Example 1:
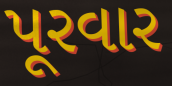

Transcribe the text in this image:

પૂરવાર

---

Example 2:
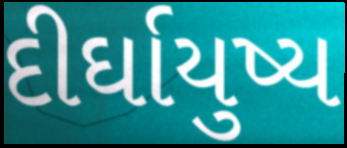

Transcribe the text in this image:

દીર્ઘાયુષ્ય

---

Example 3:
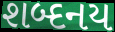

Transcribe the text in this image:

શબ્દનય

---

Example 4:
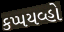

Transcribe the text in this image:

કપ્પયવ્હો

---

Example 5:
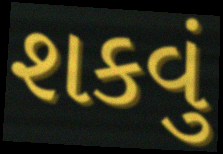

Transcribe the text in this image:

શકવું